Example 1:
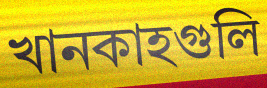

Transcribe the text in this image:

খানকাহগুলি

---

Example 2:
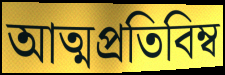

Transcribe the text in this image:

আত্মপ্রতিবিম্ব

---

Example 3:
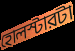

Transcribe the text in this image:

হোলস্টারটা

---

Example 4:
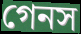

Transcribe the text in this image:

গেনস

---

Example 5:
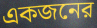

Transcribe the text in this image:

একজনের